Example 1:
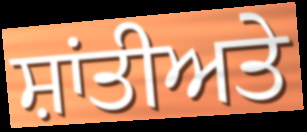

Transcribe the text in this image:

ਸ਼ਾਂਤੀਅਤੇ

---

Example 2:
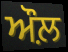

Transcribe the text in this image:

ਔਲ਼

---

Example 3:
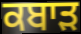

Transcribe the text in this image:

ਕਬਾਡ਼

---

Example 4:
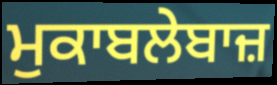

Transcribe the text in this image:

ਮੁਕਾਬਲੇਬਾਜ਼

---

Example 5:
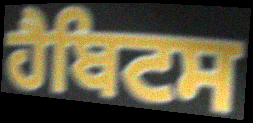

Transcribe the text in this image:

ਹੈਬਿਟਸ